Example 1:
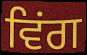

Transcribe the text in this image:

ਵਿਂਗ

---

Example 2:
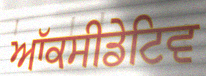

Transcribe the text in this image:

ਆੱਕਸੀਡੇਟਿਵ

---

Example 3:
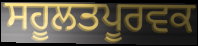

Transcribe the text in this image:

ਸਹੂਲਤਪੂਰਵਕ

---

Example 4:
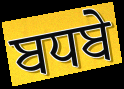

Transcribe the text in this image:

ਬਧਬੇ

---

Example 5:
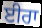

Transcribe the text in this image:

ਈਰਾ